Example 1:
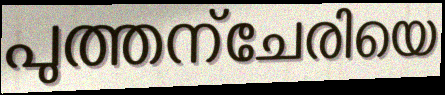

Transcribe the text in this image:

പുത്തന്ചേരിയെ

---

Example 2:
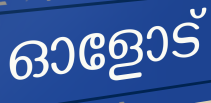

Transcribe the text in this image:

ഓളോട്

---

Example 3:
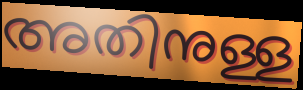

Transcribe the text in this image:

അതിനുള്ള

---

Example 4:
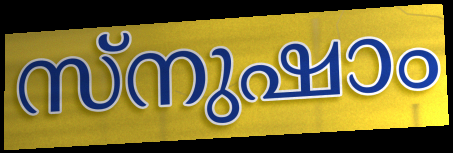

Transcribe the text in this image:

സ്നുഷാം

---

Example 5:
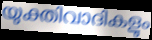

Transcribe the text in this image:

യുക്തിവാദികളും